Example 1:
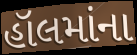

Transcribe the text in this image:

હૉલમાંના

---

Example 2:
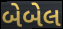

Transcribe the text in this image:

બેબેલ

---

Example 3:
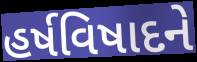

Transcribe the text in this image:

હર્ષવિષાદને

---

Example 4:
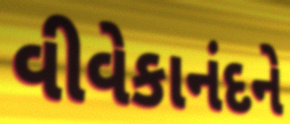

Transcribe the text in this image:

વીવેકાનંદને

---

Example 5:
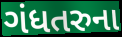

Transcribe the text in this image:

ગંધતરુના